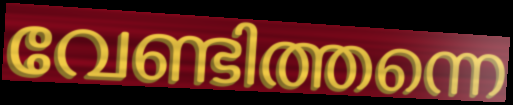
വേണ്ടിത്തന്നെ